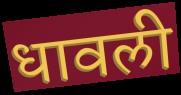
धावली